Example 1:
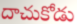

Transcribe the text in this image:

దాచుకోడు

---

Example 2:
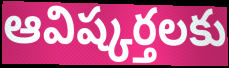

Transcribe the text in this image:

ఆవిష్కర్తలకు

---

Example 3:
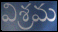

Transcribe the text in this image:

విశ్రమ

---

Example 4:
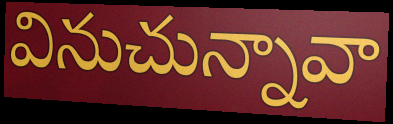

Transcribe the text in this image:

వినుచున్నావా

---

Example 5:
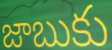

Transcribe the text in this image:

జాబుకు